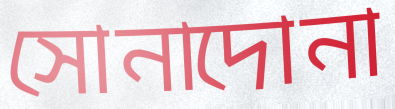
সোনাদোনা